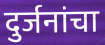
दुर्जनांचा